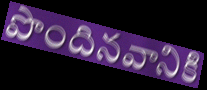
పొందినవానికి